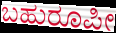
ಬಹುರೂಪೀ